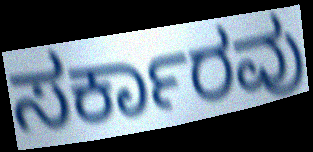
ಸರ್ಕಾರವು